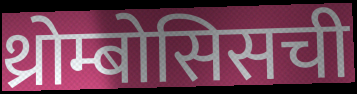
थ्रोम्बोसिसची